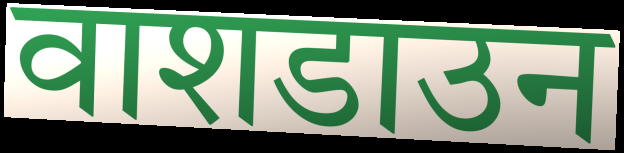
वाशडाउन